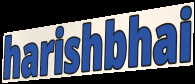
harishbhai